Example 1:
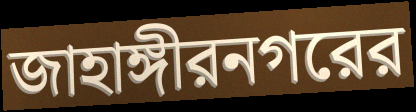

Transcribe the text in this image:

জাহাঙ্গীরনগরের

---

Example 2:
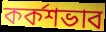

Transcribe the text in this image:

কর্কশভাব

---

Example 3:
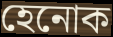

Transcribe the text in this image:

হেনোক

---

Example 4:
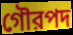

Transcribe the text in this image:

গৌরপদ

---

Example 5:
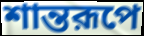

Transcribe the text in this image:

শান্তরূপে